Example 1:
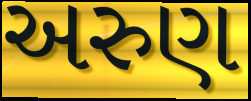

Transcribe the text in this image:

અરુણ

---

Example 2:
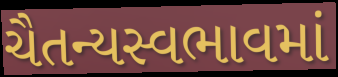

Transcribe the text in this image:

ચૈતન્યસ્વભાવમાં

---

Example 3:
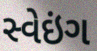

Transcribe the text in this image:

સ્વેઇંગ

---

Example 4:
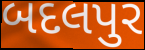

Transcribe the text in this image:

બદલપુર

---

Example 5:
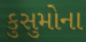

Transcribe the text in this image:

કુસુમોના